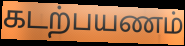
கடற்பயணம்